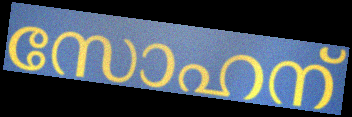
സോഹന്